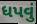
ધપવું